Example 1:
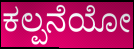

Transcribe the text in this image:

ಕಲ್ಪನೆಯೋ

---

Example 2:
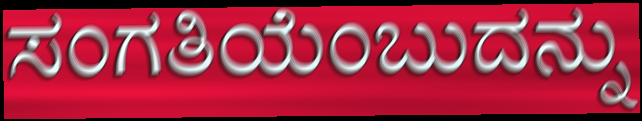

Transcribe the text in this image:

ಸಂಗತಿಯೆಂಬುದನ್ನು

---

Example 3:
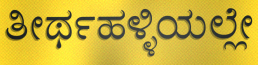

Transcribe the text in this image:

ತೀರ್ಥಹಳ್ಳಿಯಲ್ಲೇ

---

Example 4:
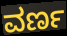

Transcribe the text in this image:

ವರ್ಣ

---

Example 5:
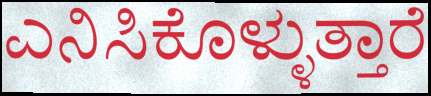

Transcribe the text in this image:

ಎನಿಸಿಕೊಳ್ಳುತ್ತಾರೆ